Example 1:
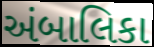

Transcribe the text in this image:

અંબાલિકા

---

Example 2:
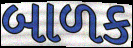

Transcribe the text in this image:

બાળક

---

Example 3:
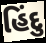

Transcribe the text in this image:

હિંદુ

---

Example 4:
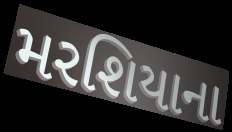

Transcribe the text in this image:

મરશિયાના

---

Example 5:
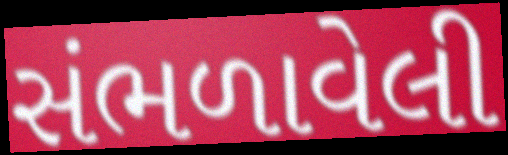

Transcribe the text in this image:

સંભળાવેલી